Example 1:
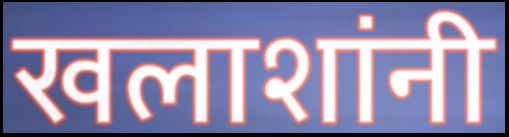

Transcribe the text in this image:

खलाशांनी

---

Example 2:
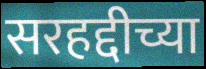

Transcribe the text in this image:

सरहद्दीच्या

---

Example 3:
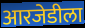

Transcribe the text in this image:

आरजेडीला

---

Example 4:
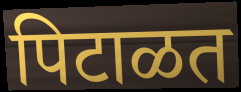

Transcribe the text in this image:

पिटाळत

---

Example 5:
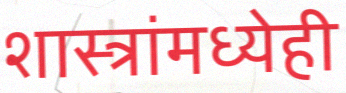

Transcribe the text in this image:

शास्त्रांमध्येही